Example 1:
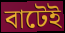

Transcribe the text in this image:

বাটেই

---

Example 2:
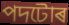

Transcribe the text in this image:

পদটোৰ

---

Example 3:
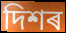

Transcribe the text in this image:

দিশৰ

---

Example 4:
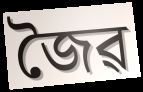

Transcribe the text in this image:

জৈৱ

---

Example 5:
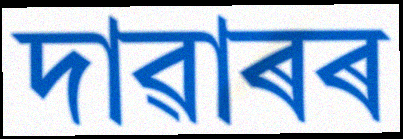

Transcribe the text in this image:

দাৱাৰৰ